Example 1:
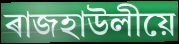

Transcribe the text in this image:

ৰাজহাউলীয়ে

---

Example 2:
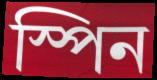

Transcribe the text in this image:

স্পিন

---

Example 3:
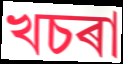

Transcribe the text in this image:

খচৰা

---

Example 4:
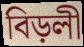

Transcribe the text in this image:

বিড়লী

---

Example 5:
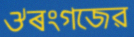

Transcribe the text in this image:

ঔৰংগজেৱ